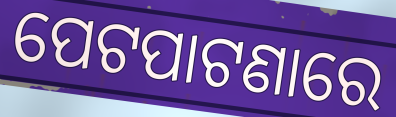
ପେଟପାଟଣାରେ